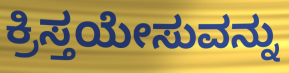
ಕ್ರಿಸ್ತಯೇಸುವನ್ನು